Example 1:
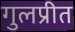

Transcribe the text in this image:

गुलप्रीत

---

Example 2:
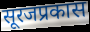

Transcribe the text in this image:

सूरजप्रकास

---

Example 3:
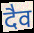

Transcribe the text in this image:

दैव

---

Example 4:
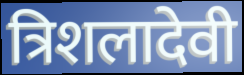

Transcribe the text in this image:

त्रिशलादेवी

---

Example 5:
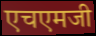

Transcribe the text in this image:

एचएमजी